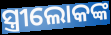
ସ୍ତ୍ରୀଲୋକଙ୍କ